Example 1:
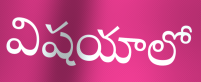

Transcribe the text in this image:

విషయాలో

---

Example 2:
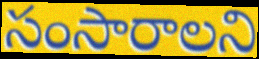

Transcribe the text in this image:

సంసారాలని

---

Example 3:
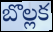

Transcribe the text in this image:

బొల్లక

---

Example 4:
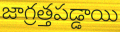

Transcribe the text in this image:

జాగ్రత్తపడ్డాయి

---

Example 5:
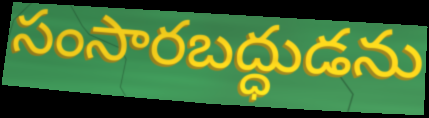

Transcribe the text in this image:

సంసారబద్ధుడను